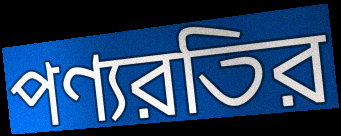
পণ্যরতির